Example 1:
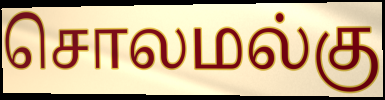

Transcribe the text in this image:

சொலமல்கு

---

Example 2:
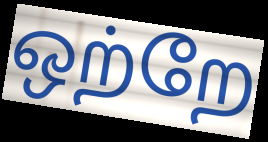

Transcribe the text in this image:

ஒற்றே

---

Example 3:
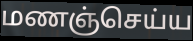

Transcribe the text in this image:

மணஞ்செய்ய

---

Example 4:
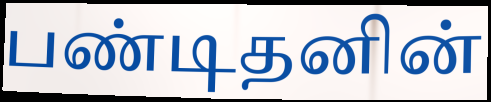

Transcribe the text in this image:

பண்டிதனின்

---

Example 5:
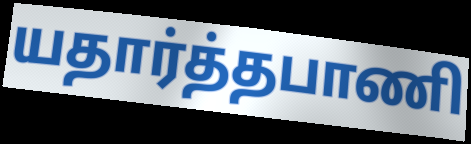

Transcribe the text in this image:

யதார்த்தபாணி